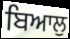
ਬਿਆਲੁ